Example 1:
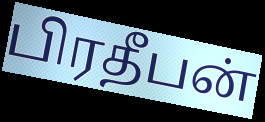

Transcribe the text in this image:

பிரதீபன்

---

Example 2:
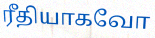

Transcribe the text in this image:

ரீதியாகவோ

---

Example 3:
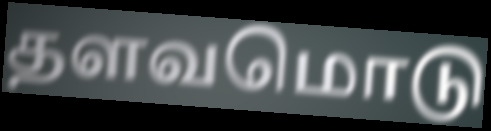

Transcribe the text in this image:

தளவமொடு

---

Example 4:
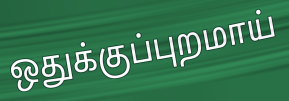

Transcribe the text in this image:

ஒதுக்குப்புறமாய்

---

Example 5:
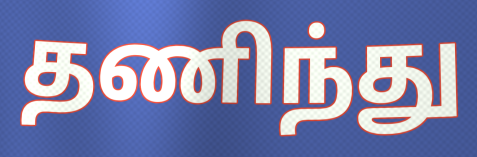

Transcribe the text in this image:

தணிந்து